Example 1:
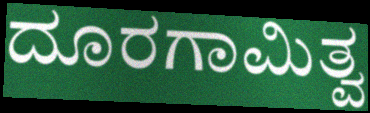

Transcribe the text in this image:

ದೂರಗಾಮಿತ್ವ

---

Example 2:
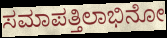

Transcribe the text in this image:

ಸಮಾಪತ್ತಿಲಾಭಿನೋ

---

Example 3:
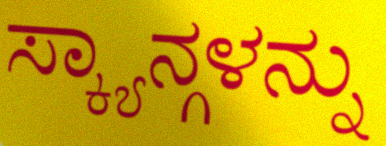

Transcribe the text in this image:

ಸ್ಕ್ಯಾನ್ಗಳನ್ನು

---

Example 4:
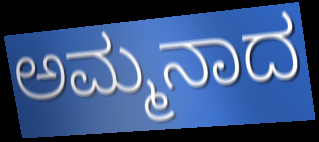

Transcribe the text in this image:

ಅಮ್ಮನಾದ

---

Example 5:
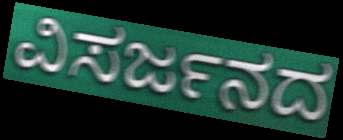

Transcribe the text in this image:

ವಿಸರ್ಜನದ